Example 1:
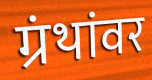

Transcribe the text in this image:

ग्रंथांवर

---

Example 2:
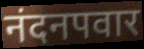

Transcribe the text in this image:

नंदनपवार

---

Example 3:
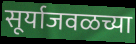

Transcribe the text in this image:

सूर्याजवळच्या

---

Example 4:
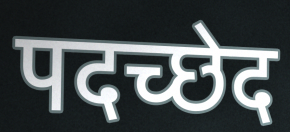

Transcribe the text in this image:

पदच्छेद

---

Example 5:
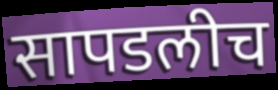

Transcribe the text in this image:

सापडलीच